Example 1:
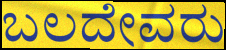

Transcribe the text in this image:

ಬಲದೇವರು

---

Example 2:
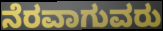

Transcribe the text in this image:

ನೆರವಾಗುವರು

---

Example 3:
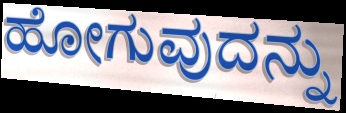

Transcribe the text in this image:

ಹೋಗುವುದನ್ನು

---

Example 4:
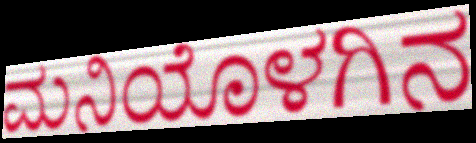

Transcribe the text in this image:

ಮನಿಯೊಳಗಿನ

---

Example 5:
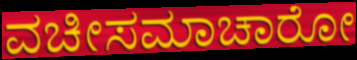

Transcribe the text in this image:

ವಚೀಸಮಾಚಾರೋ